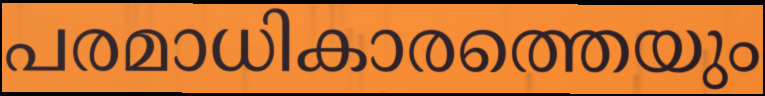
പരമാധികാരത്തെയും